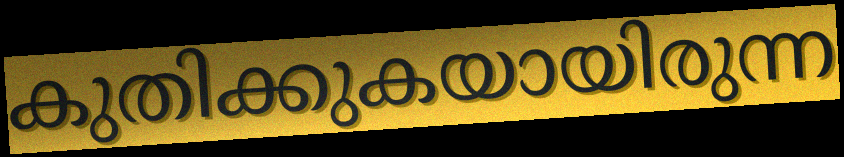
കുതിക്കുകയായിരുന്ന